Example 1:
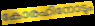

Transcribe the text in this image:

കോരഹിനോടും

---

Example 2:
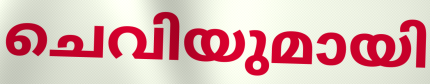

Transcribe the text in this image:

ചെവിയുമായി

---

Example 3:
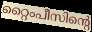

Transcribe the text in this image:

റ്റൈംപീസിന്റെ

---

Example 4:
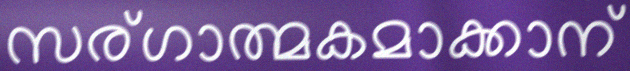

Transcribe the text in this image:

സര്ഗാത്മകമാക്കാന്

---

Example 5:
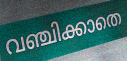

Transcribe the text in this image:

വഞ്ചിക്കാതെ